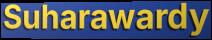
Suharawardy